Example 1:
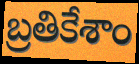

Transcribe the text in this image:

బ్రతికేశాం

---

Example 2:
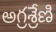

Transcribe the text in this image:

అగ్రశ్రేణి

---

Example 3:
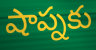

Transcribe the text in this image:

షాప్నకు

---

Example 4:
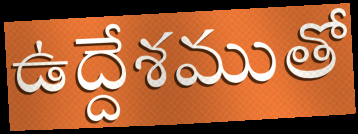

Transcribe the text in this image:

ఉద్దేశముతో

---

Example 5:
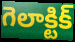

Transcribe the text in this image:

గెలాక్టిక్